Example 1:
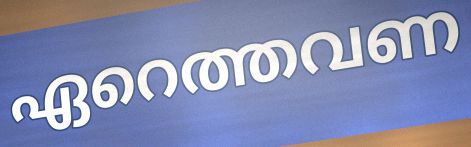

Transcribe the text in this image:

ഏറെത്തവണ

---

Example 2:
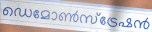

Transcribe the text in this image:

ഡെമോൺസ്ട്രേഷൻ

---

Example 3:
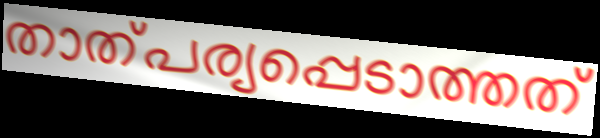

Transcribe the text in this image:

താത്പര്യപ്പെടാത്തത്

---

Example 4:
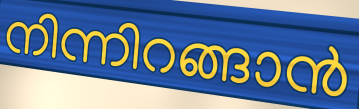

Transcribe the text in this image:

നിന്നിറങ്ങാൻ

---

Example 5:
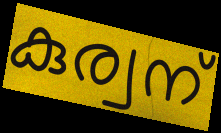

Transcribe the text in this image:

കുര്വന്